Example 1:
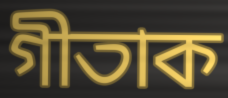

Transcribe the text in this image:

গীতাক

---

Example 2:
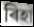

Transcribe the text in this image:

ৰিহা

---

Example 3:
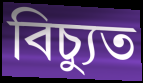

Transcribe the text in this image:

বিচ্যুত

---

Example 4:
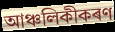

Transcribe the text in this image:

আঞ্চলিকীকৰণ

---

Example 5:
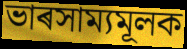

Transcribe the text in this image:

ভাৰসাম্যমূলক